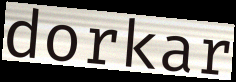
dorkar